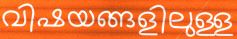
വിഷയങ്ങളിലുള്ള